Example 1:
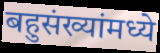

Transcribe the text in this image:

बहुसंख्यांमध्ये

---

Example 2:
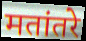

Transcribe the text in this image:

मतांतरे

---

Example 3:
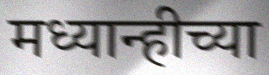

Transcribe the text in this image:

मध्यान्हीच्या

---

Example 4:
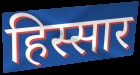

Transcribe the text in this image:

हिस्सार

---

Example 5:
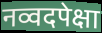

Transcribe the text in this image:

नव्वदपेक्षा